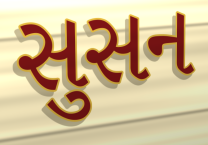
સુસન